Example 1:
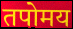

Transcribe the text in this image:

तपोमय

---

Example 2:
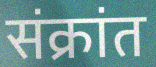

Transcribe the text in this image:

संक्रांत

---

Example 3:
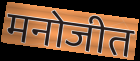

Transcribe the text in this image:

मनोजीत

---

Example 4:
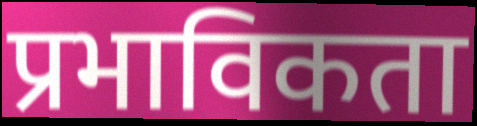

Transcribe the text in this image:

प्रभाविकता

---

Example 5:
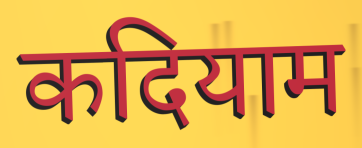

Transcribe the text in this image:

कदियाम